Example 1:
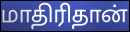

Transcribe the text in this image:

மாதிரிதான்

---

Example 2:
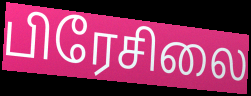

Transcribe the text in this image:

பிரேசிலை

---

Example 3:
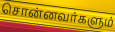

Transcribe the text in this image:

சொன்னவர்களும்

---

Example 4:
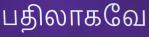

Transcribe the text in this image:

பதிலாகவே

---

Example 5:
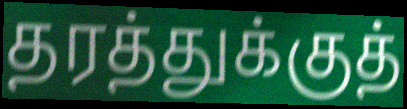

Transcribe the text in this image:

தரத்துக்குத்